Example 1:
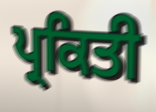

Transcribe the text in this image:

ਪ੍ਰਕਿਤੀ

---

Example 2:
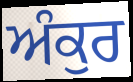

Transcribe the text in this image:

ਅੰਕੁਰ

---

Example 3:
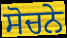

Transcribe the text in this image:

ਸੋਚਨੇ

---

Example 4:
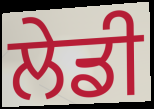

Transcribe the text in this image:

ਲੇਡੀ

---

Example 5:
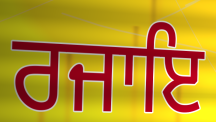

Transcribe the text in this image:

ਰਜਾਇ